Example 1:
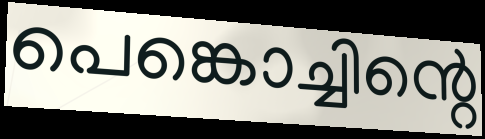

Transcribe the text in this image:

പെങ്കൊച്ചിന്റെ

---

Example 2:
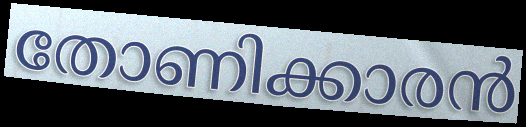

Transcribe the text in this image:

തോണിക്കാരൻ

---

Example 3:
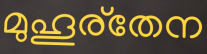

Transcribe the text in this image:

മുഹൂര്തേന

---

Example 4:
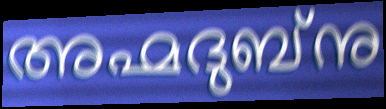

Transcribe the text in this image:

അഹ്മദുബ്നു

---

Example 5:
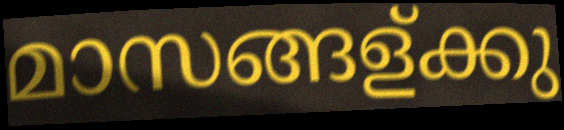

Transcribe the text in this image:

മാസങ്ങള്ക്കു